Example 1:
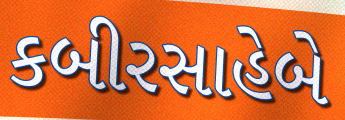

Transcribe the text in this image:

કબીરસાહેબે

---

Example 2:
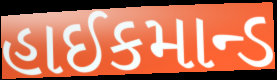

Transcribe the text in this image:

હાઈકમાન્ડ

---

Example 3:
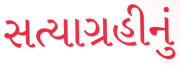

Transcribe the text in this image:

સત્યાગ્રહીનું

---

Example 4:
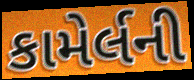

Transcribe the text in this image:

કામેર્લની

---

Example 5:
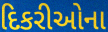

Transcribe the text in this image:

દિકરીઓના